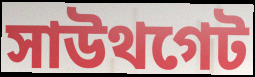
সাউথগেট